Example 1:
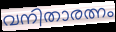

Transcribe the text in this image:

വനിതാരത്നം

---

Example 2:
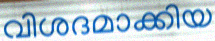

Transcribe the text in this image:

വിശദമാക്കിയ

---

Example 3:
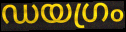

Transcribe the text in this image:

ഡയഗ്രം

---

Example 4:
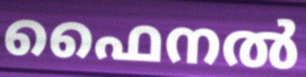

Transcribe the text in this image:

ഫൈനൽ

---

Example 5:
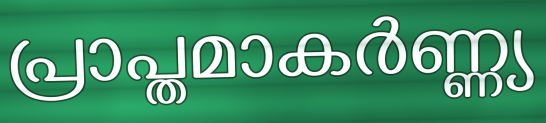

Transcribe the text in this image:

പ്രാപ്തമാകർണ്ണ്യ